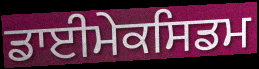
ਡਾਈਮੇਕਸਿਡਮ